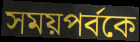
সময়পর্বকে